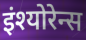
इंश्योरेन्स